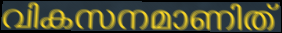
വികസനമാണിത്